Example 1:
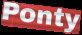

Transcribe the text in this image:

Ponty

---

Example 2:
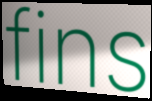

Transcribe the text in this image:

fins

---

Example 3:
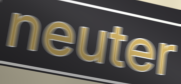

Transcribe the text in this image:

neuter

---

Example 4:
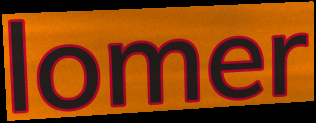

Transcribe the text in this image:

lomer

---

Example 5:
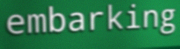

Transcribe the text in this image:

embarking